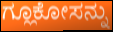
ಗ್ಲೂಕೋಸನ್ನು